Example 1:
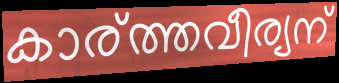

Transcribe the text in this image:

കാര്ത്തവീര്യന്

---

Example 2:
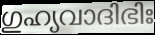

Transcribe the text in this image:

ഗുഹ്യവാദിഭിഃ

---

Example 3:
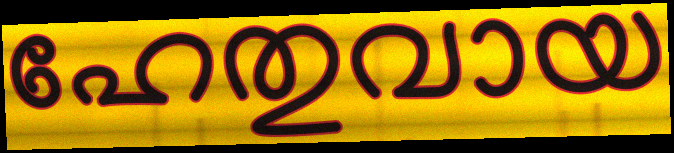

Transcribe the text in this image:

ഹേതുവായ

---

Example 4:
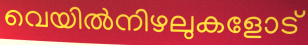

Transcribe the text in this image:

വെയിൽനിഴലുകളോട്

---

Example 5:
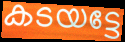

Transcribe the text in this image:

കടയട്ടേ